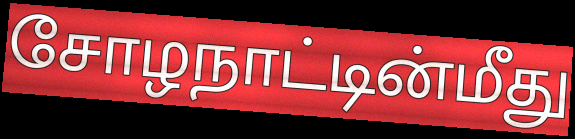
சோழநாட்டின்மீது